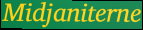
Midjaniterne